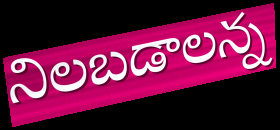
నిలబడాలన్న